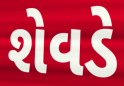
શેવડે